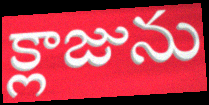
క్లాజును